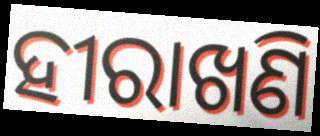
ହୀରାଖଣି